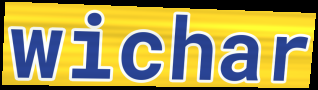
wichar